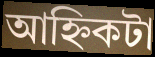
আহ্নিকটা